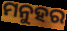
ମନୁହର